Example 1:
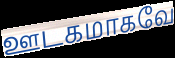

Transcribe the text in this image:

ஊடகமாகவே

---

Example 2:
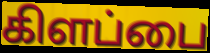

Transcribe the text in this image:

கிளப்பை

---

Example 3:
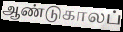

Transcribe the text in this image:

ஆண்டுகாலப்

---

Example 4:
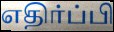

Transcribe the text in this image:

எதிர்ப்பி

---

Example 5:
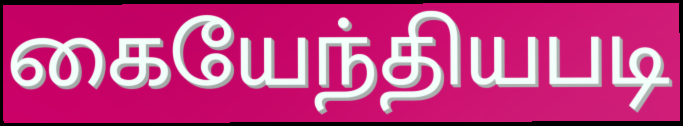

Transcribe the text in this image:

கையேந்தியபடி